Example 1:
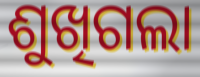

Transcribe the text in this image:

ଶୁଖିଗଲା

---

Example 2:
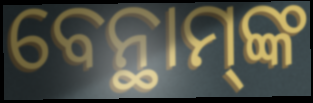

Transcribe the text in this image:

ବେନ୍ଥାମ୍‌ଙ୍କ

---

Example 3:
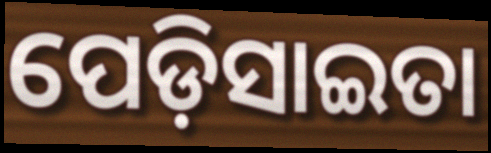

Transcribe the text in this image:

ପେଡ଼ିସାଇତା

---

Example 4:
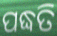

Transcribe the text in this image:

ପଦ୍ଧତି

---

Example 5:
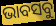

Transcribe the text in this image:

ଭାବସବୁ